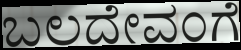
ಬಲದೇವಂಗೆ